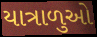
યાત્રાળુઓ